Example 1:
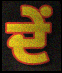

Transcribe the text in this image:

ਦੇਂ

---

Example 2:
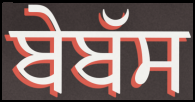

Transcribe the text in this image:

ਬੇਬੱਸ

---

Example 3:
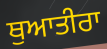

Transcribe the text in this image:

ਥੁਆਤੀਰਾ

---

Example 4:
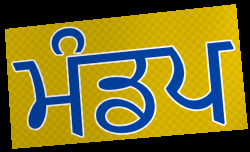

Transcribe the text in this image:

ਮੰਡਪ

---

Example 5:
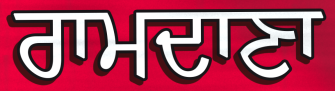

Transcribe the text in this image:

ਰਾਮਦਾਣਾ